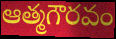
ఆత్మగౌరవం